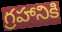
గ్రహానికి